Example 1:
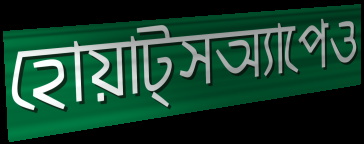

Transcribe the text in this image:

হোয়াট্‌সঅ্যাপেও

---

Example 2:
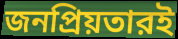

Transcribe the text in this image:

জনপ্রিয়তারই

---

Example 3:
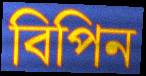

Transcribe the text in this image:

বিপিন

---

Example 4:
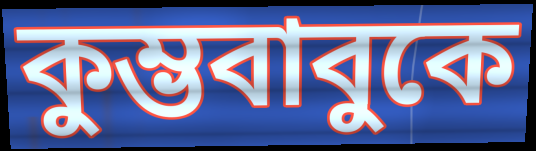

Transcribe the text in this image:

কুম্ভবাবুকে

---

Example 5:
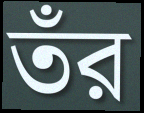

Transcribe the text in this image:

তঁর